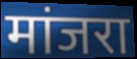
मांजरा